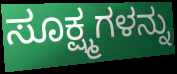
ಸೂಕ್ಷ್ಮಗಳನ್ನು